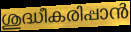
ശുദ്ധീകരിപ്പാൻ